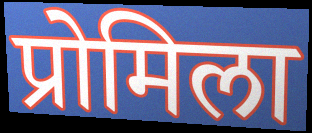
प्रोमिला